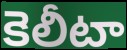
కెలీటా